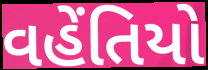
વહેંતિયો